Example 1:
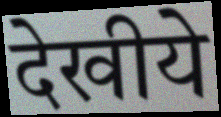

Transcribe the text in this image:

देखीये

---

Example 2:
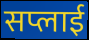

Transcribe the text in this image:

सप्लाई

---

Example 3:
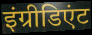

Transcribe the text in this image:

इंग्रीडिएंट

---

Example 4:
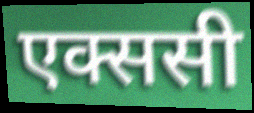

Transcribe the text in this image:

एक्ससी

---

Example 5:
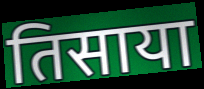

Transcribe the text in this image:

तिसाया